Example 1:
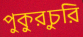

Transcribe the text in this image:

পুকুরচুরি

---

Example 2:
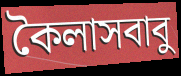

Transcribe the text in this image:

কৈলাসবাবু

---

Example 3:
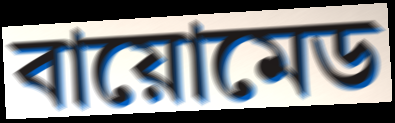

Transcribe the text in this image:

বায়োমেড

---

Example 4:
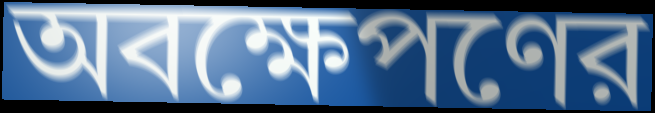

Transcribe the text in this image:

অবক্ষেপণের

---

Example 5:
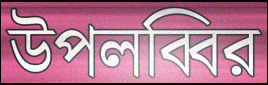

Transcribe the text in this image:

উপলব্বির